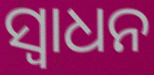
ସ୍ଵାଧନ